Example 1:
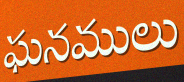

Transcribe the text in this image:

ఘనములు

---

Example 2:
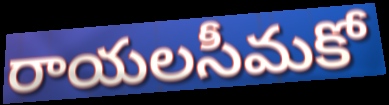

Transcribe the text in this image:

రాయలసీమకో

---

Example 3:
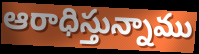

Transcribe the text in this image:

ఆరాధిస్తున్నాము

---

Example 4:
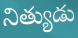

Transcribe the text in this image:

నిత్యుడు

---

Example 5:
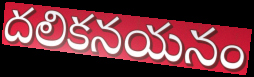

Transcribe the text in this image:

దలికనయనం